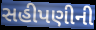
સહીપણીની